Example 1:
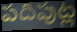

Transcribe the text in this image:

పదిపుట్ల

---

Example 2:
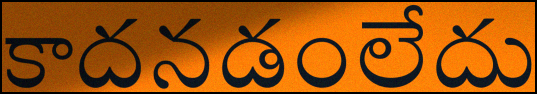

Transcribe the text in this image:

కాదనడంలేదు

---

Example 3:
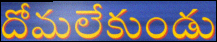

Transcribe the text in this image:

దోమలేకుండు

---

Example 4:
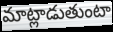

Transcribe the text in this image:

మాట్లాడుతుంటా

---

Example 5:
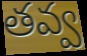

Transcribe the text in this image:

తవ్వ